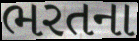
ભરતના